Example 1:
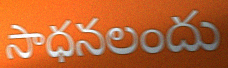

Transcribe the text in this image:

సాధనలందు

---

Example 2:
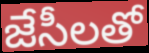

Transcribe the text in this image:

జేసీలతో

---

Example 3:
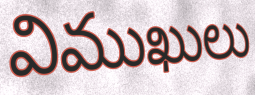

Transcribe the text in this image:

విముఖులు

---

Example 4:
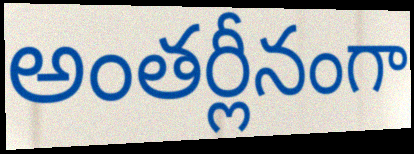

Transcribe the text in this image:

అంతర్లీనంగా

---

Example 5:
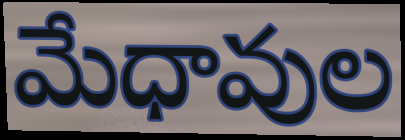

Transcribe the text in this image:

మేధావుల